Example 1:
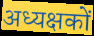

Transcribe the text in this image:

अध्यक्षकों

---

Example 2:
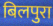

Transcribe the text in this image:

बिलपुरा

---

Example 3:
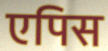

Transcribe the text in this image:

एपिस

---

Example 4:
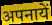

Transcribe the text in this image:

अपनायें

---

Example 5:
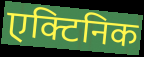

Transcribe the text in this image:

एक्टिनिक